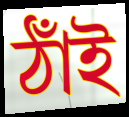
ঠাঁই